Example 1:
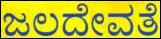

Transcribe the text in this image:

ಜಲದೇವತೆ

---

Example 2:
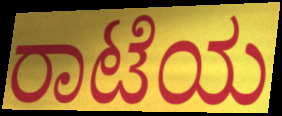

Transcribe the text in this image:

ರಾಟೆಯ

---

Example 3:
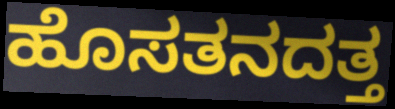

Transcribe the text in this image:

ಹೊಸತನದತ್ತ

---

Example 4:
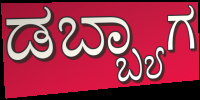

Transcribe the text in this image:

ಡಬ್ಬ್ಯಾಗ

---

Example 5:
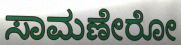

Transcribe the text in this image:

ಸಾಮಣೇರೋ